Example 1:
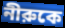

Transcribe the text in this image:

নীরুকে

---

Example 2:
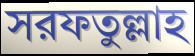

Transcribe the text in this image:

সরফতুল্লাহ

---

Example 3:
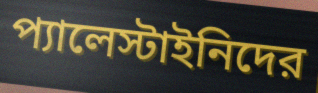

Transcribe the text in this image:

প্যালেস্টাইনিদের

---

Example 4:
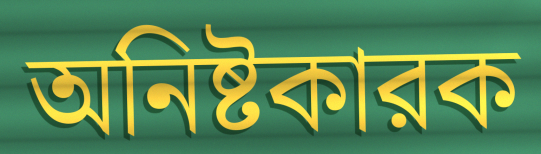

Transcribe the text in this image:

অনিষ্টকারক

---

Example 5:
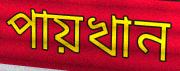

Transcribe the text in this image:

পায়খান